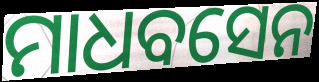
ମାଧବସେନ